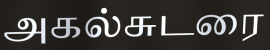
அகல்சுடரை